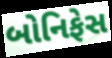
બોનિફેસ